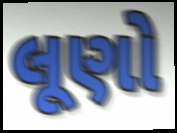
લૂણો